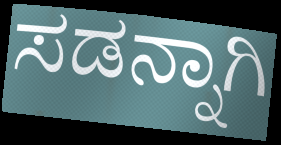
ಸಡನ್ನಾಗಿ